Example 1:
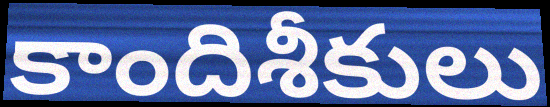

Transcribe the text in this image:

కాందిశీకులు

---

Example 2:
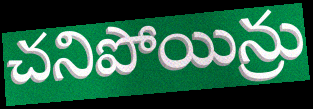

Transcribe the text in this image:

చనిపోయిన్రు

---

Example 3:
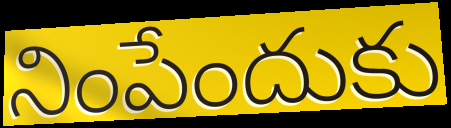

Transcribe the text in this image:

నింపేందుకు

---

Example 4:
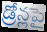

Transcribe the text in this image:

డ్రోన్లపై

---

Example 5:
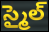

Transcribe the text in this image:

స్మైల్